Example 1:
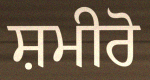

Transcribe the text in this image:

ਸ਼ਮੀਰੋ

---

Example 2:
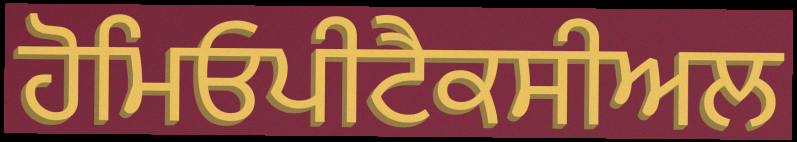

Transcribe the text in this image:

ਹੋਮਿਓਪੀਟੈਕਸੀਅਲ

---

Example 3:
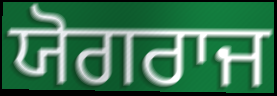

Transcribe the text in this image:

ਯੋਗਰਾਜ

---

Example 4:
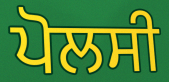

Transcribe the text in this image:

ਪੋਲਸੀ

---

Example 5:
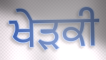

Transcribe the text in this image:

ਖੇੜਕੀ